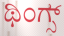
ಥಿಂಗ್ಸ್